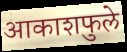
आकाशफुले